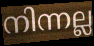
നിന്നല്ല